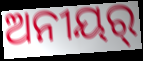
ଅନୀୟର୍